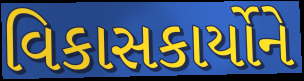
વિકાસકાર્યોને